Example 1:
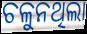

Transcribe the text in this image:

ଚଳୁନଥିଲା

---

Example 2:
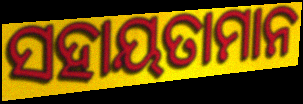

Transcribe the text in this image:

ସହାୟତାମାନ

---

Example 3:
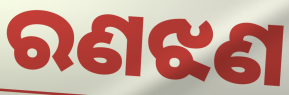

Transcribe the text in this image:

ରଣଝଣ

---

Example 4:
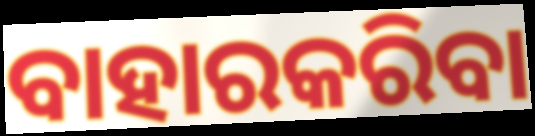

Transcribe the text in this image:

ବାହାରକରିବା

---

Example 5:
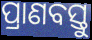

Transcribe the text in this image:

ପ୍ରାଣବସ୍ତୁ